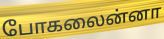
போகலைன்னா